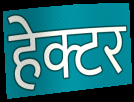
हेक्टर